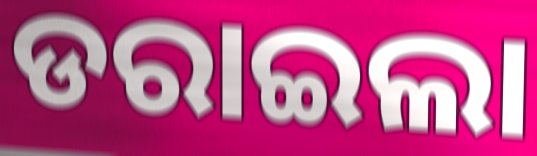
ଡରାଇଲା